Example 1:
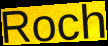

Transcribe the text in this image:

Roch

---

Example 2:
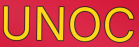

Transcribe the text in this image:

UNOC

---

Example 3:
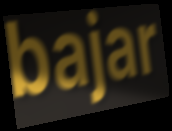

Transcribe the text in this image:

bajar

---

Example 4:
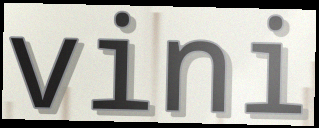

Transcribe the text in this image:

vini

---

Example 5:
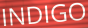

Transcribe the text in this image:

INDIGO